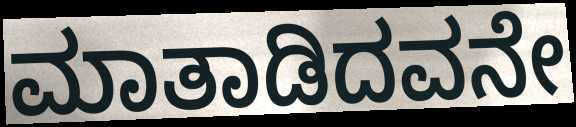
ಮಾತಾಡಿದವನೇ